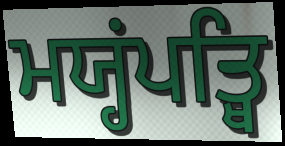
ਮਯ੍ਹਂਪਤ੍ਥਿ